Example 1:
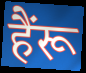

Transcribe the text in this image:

हैंरू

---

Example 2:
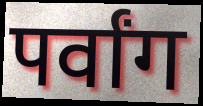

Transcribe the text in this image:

पर्वांग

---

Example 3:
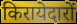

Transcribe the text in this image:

किरायेदारों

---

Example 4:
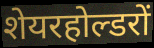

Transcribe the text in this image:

शेयरहोल्डरों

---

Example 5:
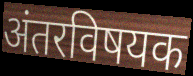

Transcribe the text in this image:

अंतरविषयक